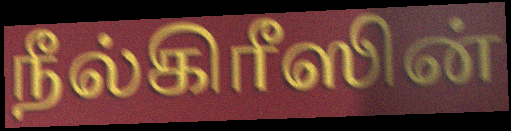
நீல்கிரீஸின்